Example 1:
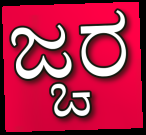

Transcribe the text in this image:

ಜ್ಚರ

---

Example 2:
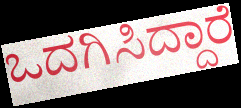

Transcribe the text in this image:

ಒದಗಿಸಿದ್ದಾರೆ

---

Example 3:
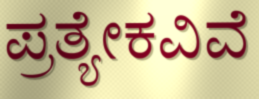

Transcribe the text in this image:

ಪ್ರತ್ಯೇಕವಿವೆ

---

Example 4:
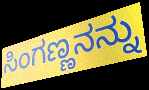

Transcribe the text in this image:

ಸಿಂಗಣ್ಣನನ್ನು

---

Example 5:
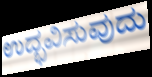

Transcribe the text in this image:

ಉದ್ಭವಿಸುವುದು